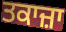
ਤਕਾਜ਼ਾ